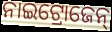
ନାଇଟ୍ରୋଜେନ୍